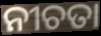
ନୀଚତା